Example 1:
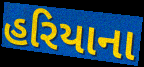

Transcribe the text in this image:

હરિયાના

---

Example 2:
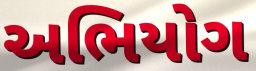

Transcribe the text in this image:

અભિયોગ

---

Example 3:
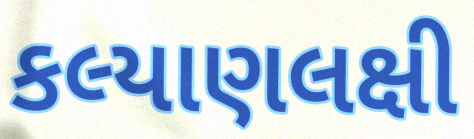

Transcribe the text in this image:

કલ્યાણલક્ષી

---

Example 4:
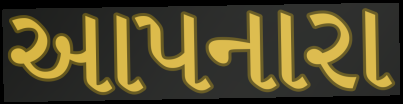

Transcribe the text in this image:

આપનારા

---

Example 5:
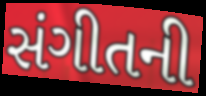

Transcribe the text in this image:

સંગીતની